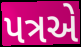
પત્રએ